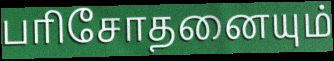
பரிசோதனையும்